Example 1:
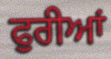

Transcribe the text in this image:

ਫੁਰੀਆਂ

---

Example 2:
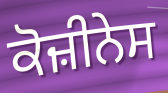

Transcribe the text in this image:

ਕੋਜ਼ੀਨੇਸ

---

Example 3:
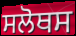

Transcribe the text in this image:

ਸਲੋਥਸ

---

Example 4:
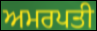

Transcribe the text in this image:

ਅਮਰਪਤੀ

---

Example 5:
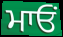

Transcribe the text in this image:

ਮਾਓਂ